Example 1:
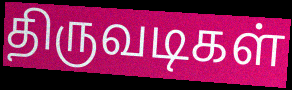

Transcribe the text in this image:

திருவடிகள்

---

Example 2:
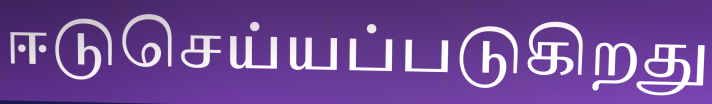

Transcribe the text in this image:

ஈடுசெய்யப்படுகிறது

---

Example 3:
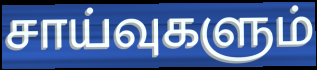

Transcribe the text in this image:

சாய்வுகளும்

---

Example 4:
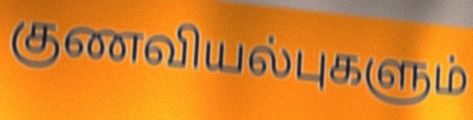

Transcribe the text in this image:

குணவியல்புகளும்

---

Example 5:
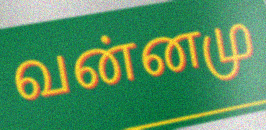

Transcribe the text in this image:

வன்னமு